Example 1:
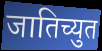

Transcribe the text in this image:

जातिच्युत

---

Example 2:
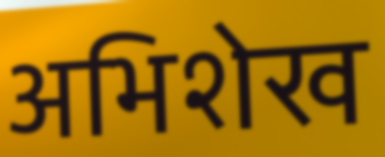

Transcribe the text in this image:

अभिशेख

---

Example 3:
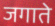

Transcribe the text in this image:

जगाते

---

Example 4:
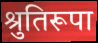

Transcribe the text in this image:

श्रुतिरूपा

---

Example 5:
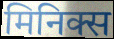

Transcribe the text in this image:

मिनिक्स